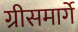
ग्रीसमार्गे